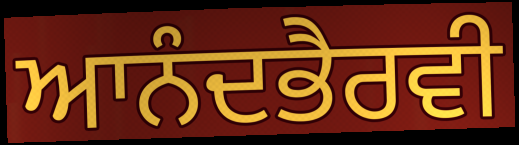
ਆਨੰਦਭੈਰਵੀ